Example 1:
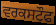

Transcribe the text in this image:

ਵਰਕਸਟੌਫ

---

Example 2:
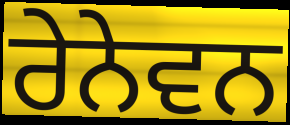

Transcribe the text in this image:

ਰੇਨੇਵਨ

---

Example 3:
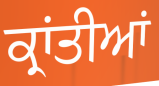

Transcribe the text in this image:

ਕ੍ਰਾਂਤੀਆਂ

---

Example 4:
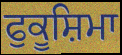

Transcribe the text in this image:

ਫੁਕੂਸ਼ਿਮਾ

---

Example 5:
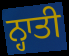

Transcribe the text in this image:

ਨ੍ਹਾਤੀ